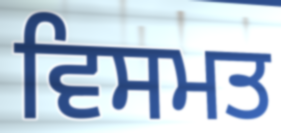
ਵਿਸਮਤ